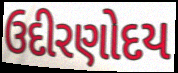
ઉદીરણોદય